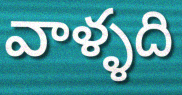
వాళ్ళది